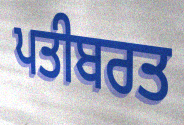
ਪਤੀਬਰਤ